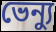
ভেন্যু